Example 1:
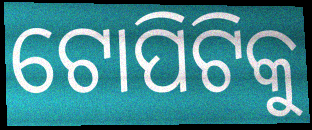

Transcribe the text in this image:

ଟୋପିଟିକୁ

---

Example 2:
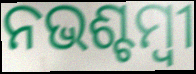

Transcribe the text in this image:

ନଭଶ୍ଚମ୍ବୀ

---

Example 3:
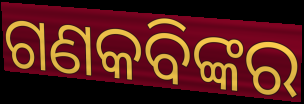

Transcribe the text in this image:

ଗଣକବିଙ୍କର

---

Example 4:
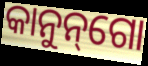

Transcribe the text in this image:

କାନୁନ୍‌ଗୋ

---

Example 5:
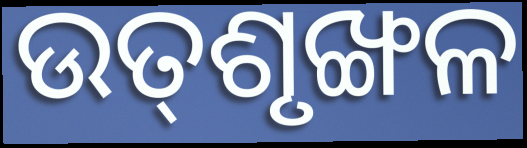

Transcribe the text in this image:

ଉତ୍‌ଶୃଙ୍ଖଳ